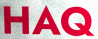
HAQ